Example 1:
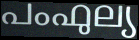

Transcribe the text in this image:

പംഫുല്യ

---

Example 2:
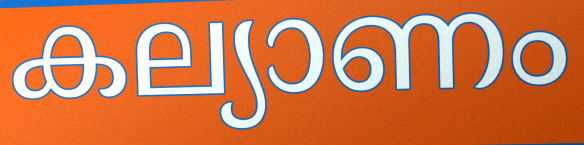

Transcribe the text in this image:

കല്യാണം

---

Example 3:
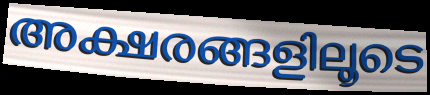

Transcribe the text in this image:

അക്ഷരങ്ങളിലൂടെ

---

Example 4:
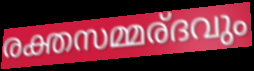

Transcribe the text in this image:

രക്തസമ്മര്ദവും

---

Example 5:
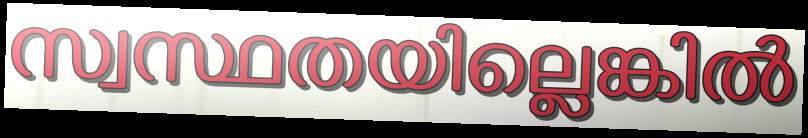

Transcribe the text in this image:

സ്വസ്ഥതയില്ലെങ്കിൽ